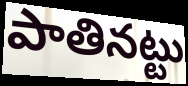
పాతినట్టు